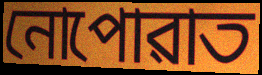
নোপোৱাত